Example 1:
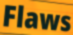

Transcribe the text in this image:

Flaws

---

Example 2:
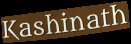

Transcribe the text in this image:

Kashinath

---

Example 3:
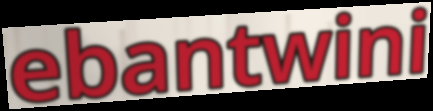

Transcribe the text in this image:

ebantwini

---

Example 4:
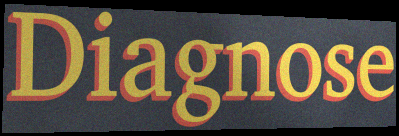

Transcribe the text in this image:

Diagnose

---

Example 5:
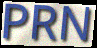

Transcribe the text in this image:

PRN